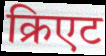
क्रिएट